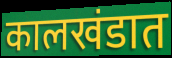
कालखंडात